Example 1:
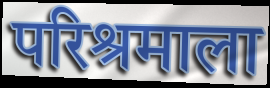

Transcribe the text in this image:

परिश्रमाला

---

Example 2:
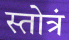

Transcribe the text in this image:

स्तोत्रं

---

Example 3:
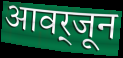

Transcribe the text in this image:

आवर्जून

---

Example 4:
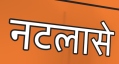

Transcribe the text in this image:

नटलासे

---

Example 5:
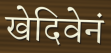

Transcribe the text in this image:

खेदिवेनं